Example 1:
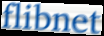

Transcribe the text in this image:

flibnet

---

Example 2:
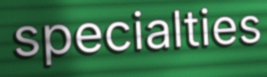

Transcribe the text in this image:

specialties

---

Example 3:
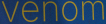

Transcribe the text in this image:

venom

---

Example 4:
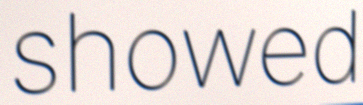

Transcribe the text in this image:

showed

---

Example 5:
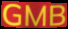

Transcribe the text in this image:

GMB